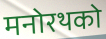
मनोरथको